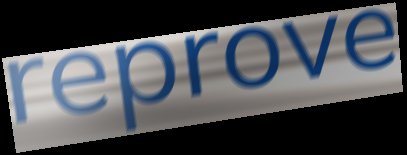
reprove